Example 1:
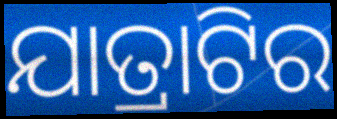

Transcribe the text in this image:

ଯାତ୍ରାଟିର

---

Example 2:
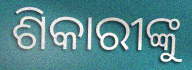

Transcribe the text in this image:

ଶିକାରୀଙ୍କୁ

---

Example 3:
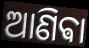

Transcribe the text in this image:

ଆଣିଵା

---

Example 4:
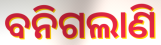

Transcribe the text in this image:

ବନିଗଲାଣି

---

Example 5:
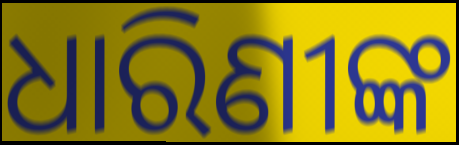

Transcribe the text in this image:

ଧାରିଣୀଙ୍କ